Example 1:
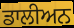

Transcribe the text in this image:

ਡਾਲੀਅਨ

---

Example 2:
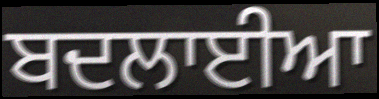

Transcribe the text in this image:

ਬਦਲਾਈਆ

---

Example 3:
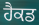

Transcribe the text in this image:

ਹੈਕਡ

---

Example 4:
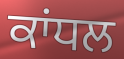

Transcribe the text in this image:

ਕਾਂਧਲ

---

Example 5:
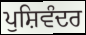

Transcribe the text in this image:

ਪੁਸ਼ਿਵੰਦਰ